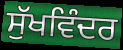
ਸੁੱਖਵਿੰਦਰ